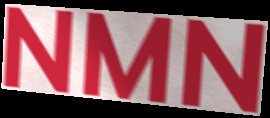
NMN